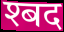
श्बद